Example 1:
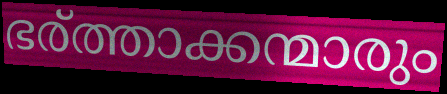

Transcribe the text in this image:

ഭര്ത്താക്കന്മാരും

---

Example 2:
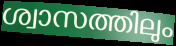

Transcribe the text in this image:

ശ്വാസത്തിലും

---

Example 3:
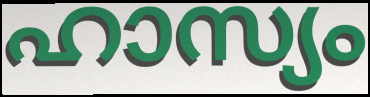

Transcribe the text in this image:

ഹാസ്യം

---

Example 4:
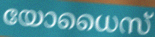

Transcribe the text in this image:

യോധൈസ്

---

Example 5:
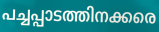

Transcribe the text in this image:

പച്ചപ്പാടത്തിനക്കരെ